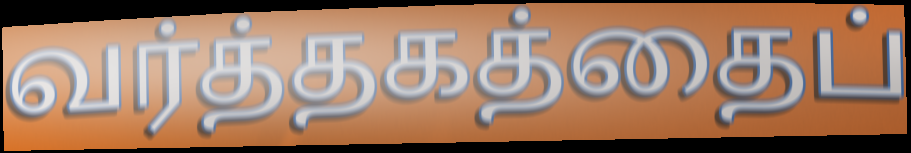
வர்த்தகத்தைப்